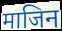
माजिन